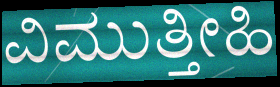
ವಿಮುತ್ತೀಹಿ